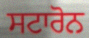
ਸਟਾਰੋਨ